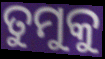
ତୁମୁକୁ